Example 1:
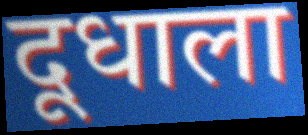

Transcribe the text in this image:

दूधाला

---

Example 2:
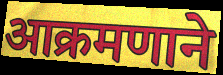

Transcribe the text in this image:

आक्रमणाने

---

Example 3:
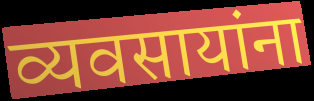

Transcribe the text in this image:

व्यवसायांना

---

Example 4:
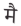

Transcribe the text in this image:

मै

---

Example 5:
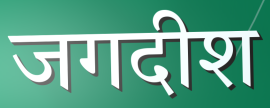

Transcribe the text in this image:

जगदीश